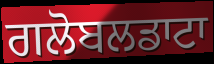
ਗਲੋਬਲਡਾਟਾ